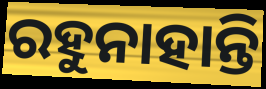
ରହୁନାହାନ୍ତି